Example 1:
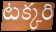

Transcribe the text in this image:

టక్కరి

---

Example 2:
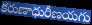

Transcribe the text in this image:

కరుణాధురీణయగు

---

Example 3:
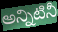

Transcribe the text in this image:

అన్నిటినీ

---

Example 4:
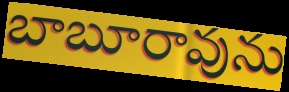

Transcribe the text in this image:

బాబూరావును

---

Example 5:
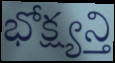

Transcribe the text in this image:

భోక్ష్యన్తి